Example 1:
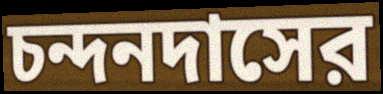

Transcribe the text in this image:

চন্দনদাসের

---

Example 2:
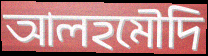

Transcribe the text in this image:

আলহমৌদি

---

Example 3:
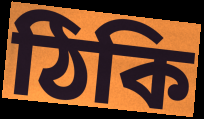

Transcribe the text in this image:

ঠিকি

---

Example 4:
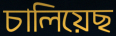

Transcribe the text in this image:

চালিয়েছ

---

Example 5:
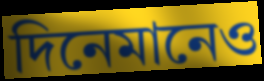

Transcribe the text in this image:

দিনেমানেও